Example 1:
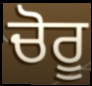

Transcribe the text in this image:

ਚੋਰੂ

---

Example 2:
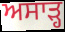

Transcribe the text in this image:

ਅਸਾੜ੍ਹ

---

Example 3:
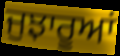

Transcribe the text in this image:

ਜੁਝਾਰੂਆਂ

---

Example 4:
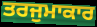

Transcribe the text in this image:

ਤਰਜੁਮਾਕਾਰ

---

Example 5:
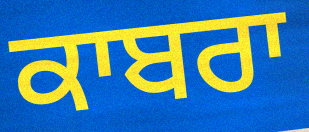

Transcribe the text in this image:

ਕਾਬਰਾ